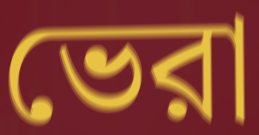
ভেরা